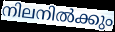
നിലനിൽക്കും